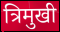
त्रिमुखी